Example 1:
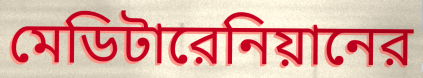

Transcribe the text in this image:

মেডিটারেনিয়ানের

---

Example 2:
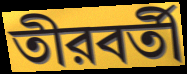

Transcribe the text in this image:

তীরবর্তী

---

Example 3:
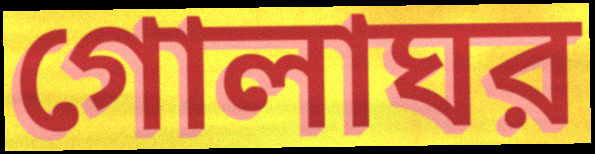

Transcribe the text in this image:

গোলাঘর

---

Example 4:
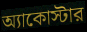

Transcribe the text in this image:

অ্যাকোস্টার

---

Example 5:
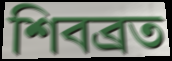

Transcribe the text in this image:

শিবব্রত